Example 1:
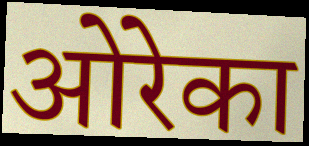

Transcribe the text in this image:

ओरेका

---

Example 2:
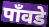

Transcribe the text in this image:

पाँवडे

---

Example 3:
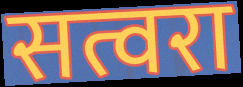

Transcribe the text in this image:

सत्वरा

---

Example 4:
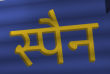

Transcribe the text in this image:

स्पैन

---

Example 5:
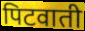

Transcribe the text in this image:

पिटवाती